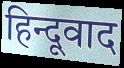
हिन्दूवाद